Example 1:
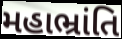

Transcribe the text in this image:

મહાભ્રાંતિ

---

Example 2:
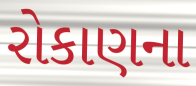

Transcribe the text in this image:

રોકાણના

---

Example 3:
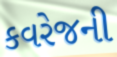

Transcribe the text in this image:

કવરેજની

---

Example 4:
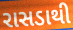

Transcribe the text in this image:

રાસડાથી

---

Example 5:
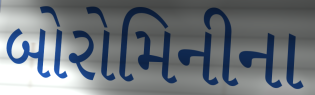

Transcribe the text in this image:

બોરોમિનીના